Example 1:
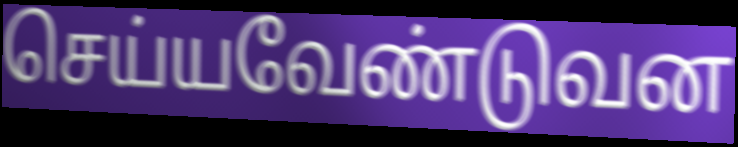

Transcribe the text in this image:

செய்யவேண்டுவன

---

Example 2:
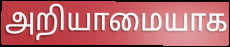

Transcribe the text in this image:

அறியாமையாக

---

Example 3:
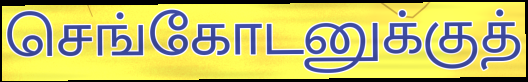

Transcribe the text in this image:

செங்கோடனுக்குத்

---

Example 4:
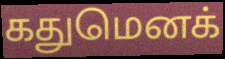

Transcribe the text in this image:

கதுமெனக்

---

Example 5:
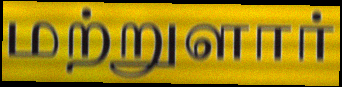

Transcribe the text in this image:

மற்றுளார்